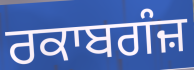
ਰਕਾਬਗੰਜ਼